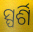
ସ୍ପର୍ଶି